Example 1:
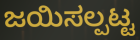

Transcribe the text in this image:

ಜಯಿಸಲ್ಪಟ್ಟ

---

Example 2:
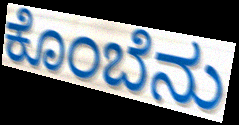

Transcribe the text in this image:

ಕೊಂಬೆನು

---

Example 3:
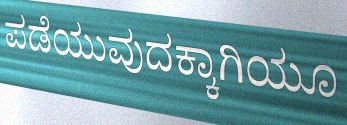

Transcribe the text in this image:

ಪಡೆಯುವುದಕ್ಕಾಗಿಯೂ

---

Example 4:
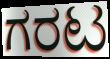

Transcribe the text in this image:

ಗರಟ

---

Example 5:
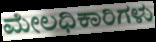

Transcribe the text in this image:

ಮೇಲಧಿಕಾರಿಗಳು